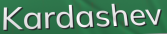
Kardashev